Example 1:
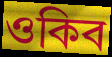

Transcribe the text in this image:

ওকিব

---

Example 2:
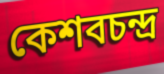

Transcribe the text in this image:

কেশবচন্দ্র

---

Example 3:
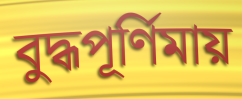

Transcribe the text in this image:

বুদ্ধপূর্ণিমায়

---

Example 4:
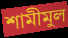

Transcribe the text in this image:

শামীমুল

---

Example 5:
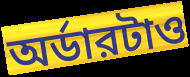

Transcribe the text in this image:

অর্ডারটাও